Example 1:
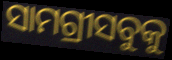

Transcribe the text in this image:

ସାମଗ୍ରୀସବୁକୁ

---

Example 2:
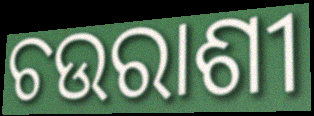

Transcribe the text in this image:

ଚଉରାଶୀ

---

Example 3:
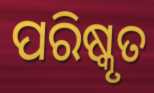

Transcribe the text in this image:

ପରିଷ୍କୃତ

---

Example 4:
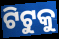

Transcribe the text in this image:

ଟିଟୁକୁ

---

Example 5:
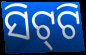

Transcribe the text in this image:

ସିଟ୍‌ଟି